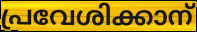
പ്രവേശിക്കാന്